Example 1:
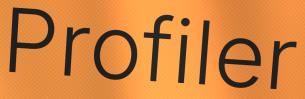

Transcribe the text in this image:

Profiler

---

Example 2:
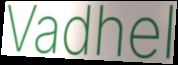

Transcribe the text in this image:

Vadhel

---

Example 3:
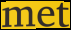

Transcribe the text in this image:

met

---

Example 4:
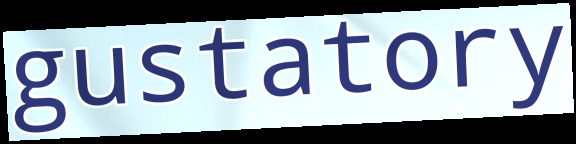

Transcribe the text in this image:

gustatory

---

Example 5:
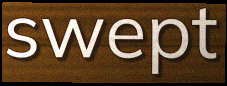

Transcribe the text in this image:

swept